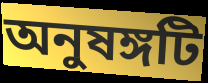
অনুষঙ্গটি